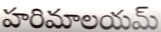
హరిమాలయమ్